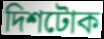
দিশটোক